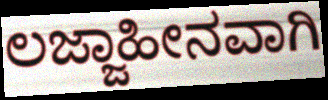
ಲಜ್ಜಾಹೀನವಾಗಿ